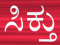
ಸಿಕ್ತು